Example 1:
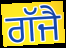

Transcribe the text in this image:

ਗੱਜੈ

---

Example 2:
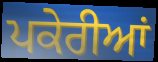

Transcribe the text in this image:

ਪਕੇਰੀਆਂ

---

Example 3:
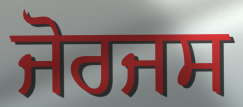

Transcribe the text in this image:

ਜੋਰਜਸ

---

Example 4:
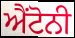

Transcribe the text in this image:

ਐਂਟੋਨੀ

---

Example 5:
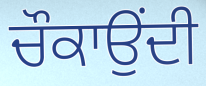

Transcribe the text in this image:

ਚੌਕਾਉਂਦੀ